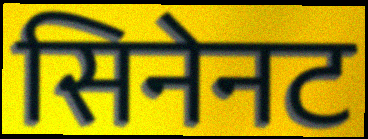
सिनेनट